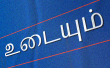
உடையும்